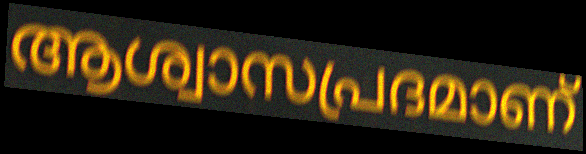
ആശ്വാസപ്രദമാണ്